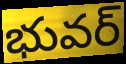
భువర్